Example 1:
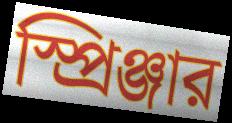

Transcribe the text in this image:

স্প্রিঞ্জার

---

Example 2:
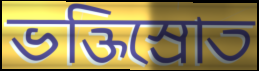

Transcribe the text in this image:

ভক্তিস্রোত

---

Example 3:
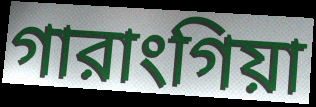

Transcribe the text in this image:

গারাংগিয়া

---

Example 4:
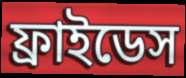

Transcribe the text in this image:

ফ্রাইডেস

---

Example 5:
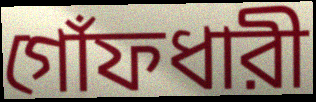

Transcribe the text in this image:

গোঁফধারী